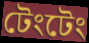
টেংটেং